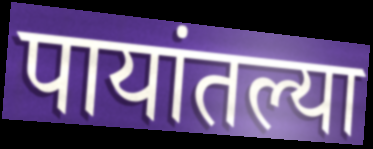
पायांतल्या